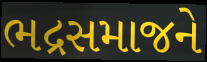
ભદ્રસમાજને